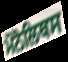
ਮੋਨੋਲਿਥਸ